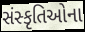
સંસ્કૃતિઓના